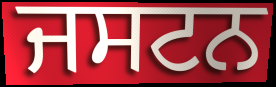
ਜਸਟਨ